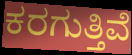
ಕರಗುತ್ತಿವೆ